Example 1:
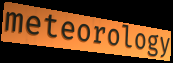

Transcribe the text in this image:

meteorology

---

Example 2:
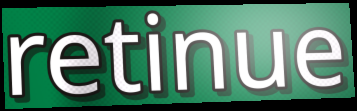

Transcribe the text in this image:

retinue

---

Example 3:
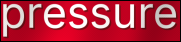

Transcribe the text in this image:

pressure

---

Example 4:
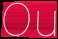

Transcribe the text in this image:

Ou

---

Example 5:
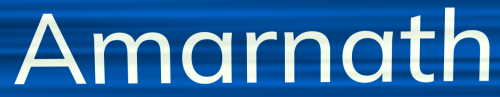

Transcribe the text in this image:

Amarnath